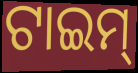
ଟାଇମ୍